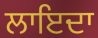
ਲਾਇਦਾ